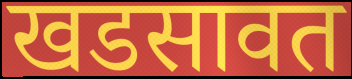
खडसावत